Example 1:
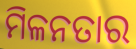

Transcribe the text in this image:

ମିଳନତାର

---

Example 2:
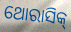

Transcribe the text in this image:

ଥୋରାସିକ୍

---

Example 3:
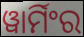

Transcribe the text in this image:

ୱାର୍ମିଂର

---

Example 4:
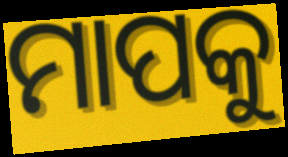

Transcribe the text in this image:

ମାପକୁ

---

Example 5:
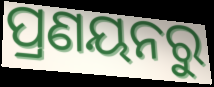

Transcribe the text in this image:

ପ୍ରଣୟନରୁ